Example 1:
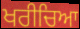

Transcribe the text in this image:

ਖਰੀਚਿਆ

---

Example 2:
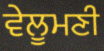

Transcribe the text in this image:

ਵੇਲੂਮਣੀ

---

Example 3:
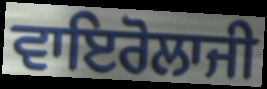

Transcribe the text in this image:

ਵਾਇਰੋਲਾਜੀ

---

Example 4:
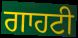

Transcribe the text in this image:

ਗਾਹਟੀ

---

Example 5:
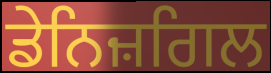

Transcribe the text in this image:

ਡੇਨਿਜ਼ਗਿਲ